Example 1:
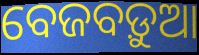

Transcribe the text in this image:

ବେଜବଡ଼ୁଆ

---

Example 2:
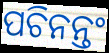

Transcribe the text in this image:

ପଚିନନ୍ତଂ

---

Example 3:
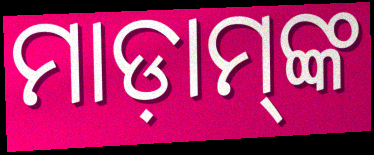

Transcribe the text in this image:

ମାଡ଼ାମ୍‌ଙ୍କ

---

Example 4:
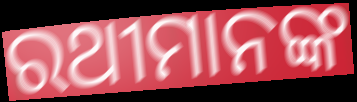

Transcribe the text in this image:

ରଥୀମାନଙ୍କ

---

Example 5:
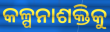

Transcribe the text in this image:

କଳ୍ପନାଶକ୍ତିକୁ